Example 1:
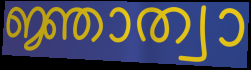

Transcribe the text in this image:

ജ്ഞാത്വാ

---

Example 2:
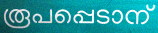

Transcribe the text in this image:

രൂപപ്പെടാന്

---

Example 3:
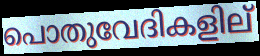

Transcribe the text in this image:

പൊതുവേദികളില്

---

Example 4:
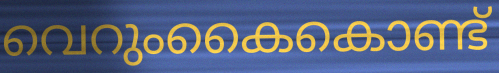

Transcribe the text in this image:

വെറുംകൈകൊണ്ട്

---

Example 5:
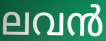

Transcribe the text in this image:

ലവൻ